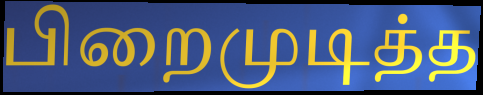
பிறைமுடித்த